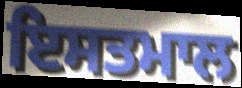
ਇਸਤਮਾਲ